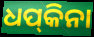
ଧପ୍‍କିନା